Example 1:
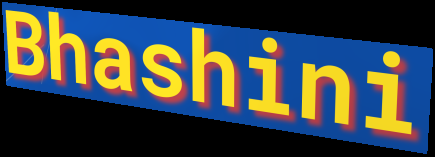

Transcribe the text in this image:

Bhashini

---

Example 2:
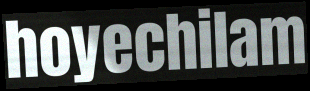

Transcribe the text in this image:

hoyechilam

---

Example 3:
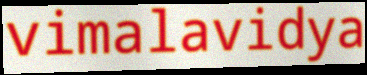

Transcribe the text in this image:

vimalavidya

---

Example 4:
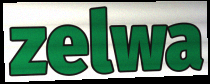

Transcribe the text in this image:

zelwa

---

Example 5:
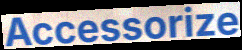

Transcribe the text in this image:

Accessorize